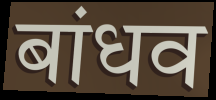
बांधव